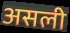
असली